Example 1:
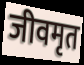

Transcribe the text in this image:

जीवमृत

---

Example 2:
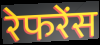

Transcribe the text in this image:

रेफरेंस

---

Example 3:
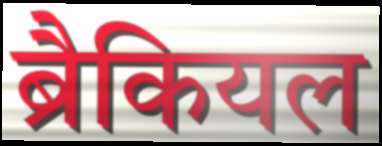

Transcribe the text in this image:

ब्रैकियल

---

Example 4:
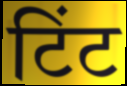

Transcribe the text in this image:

टिंट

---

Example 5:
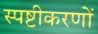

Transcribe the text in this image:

स्पष्टीकरणों